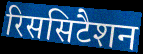
रिससिटैशन